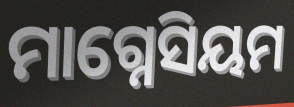
ମାଗ୍ନେସିୟମ